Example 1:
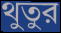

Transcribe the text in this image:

থুতুর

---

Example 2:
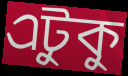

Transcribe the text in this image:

এটুকু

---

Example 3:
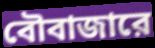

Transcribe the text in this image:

বৌবাজারে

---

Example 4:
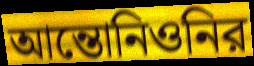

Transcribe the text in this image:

আন্তোনিওনির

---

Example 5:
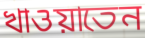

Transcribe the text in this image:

খাওয়াতেন